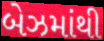
બેઝમાંથી